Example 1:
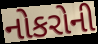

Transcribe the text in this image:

નોકરોની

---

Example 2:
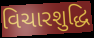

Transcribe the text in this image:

વિચારશુદ્ધિ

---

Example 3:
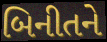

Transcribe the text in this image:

બિનીતને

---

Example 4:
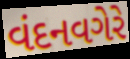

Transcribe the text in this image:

વંદનવગેરે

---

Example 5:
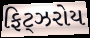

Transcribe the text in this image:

ફિટ્ઝરોય